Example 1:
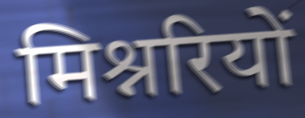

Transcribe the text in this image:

मिश्नरियों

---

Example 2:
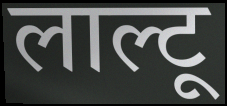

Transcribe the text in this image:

लाल्टू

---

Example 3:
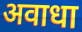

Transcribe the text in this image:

अवाधा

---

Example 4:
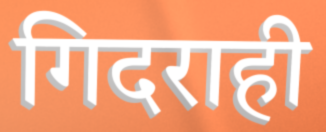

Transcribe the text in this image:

गिदराही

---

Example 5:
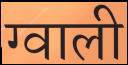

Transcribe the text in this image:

ग्वाली